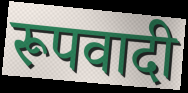
रूपवादी